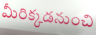
మీరిక్కడనుంచి